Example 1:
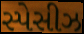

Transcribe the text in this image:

સ્પેસીઝ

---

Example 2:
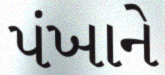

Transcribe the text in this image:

પંખાને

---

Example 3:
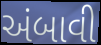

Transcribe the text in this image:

અંબાવી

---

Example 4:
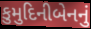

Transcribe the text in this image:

કુમુદિનીબેનનું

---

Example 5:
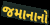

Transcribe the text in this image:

જમાનાનો